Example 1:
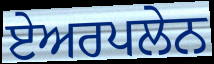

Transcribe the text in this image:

ਏਅਰਪਲੇਨ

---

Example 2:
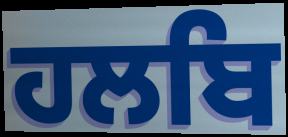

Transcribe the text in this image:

ਹਲਬਿ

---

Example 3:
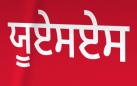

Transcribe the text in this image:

ਯੂਏਸਏਸ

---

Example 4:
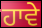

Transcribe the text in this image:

ਹਾਵੇ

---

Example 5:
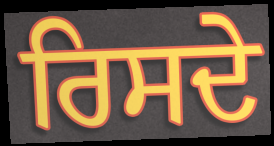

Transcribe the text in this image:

ਰਿਸਦੇ